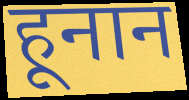
हूनान